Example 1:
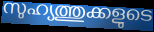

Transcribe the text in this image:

സുഹ്യത്തുക്കളുടെ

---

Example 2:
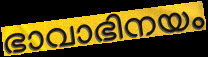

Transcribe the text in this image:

ഭാവാഭിനയം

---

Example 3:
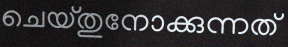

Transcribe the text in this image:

ചെയ്തുനോക്കുന്നത്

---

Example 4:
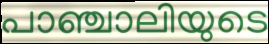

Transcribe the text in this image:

പാഞ്ചാലിയുടെ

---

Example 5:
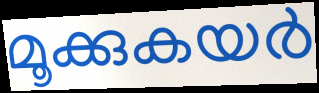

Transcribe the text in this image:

മൂക്കുകയർ